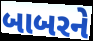
બાબરને